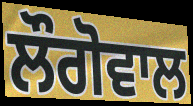
ਲੌਗੋਵਾਲ